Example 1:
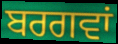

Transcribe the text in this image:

ਬਰਗਵਾਂ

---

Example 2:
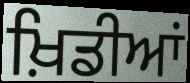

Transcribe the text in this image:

ਖ਼ਿਡੀਆਂ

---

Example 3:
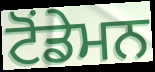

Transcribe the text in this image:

ਟੋਂਡੇਮਨ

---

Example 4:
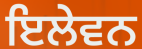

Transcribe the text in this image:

ਇਲੇਵਨ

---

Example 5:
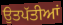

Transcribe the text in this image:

ਉਤਪੱਤੀਆਂ